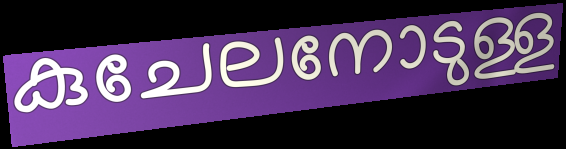
കുചേലനോടുള്ള